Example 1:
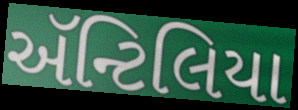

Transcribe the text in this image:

ઍન્ટિલિયા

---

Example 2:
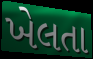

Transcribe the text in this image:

ખેલતા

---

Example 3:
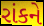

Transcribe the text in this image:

રાંકને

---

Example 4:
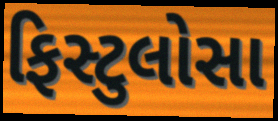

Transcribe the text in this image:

ફિસ્ટુલોસા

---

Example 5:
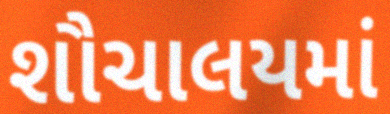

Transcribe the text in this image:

શૌચાલયમાં